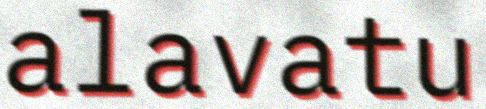
alavatu